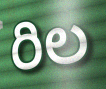
రిల